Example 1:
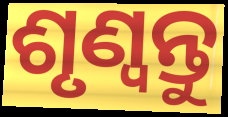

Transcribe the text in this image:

ଶୃଣ୍ଵନ୍ତୁ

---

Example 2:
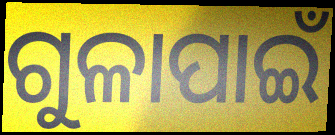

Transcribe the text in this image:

ଗୁଳାପାଇଁ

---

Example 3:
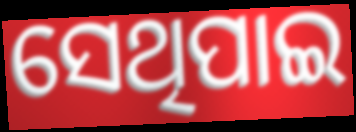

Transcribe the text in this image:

ସେଥିପାଇ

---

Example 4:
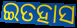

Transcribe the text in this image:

ଇତହାସ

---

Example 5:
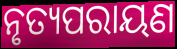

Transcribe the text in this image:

ନୃତ୍ୟପରାୟଣ